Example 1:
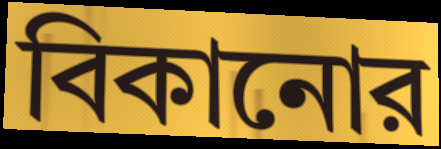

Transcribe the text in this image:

বিকানোর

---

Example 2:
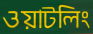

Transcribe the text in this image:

ওয়াটলিং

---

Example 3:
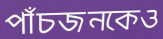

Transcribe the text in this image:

পাঁচজনকেও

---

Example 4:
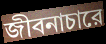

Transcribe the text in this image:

জীবনাচারে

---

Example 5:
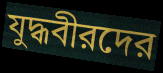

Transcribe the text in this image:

যুদ্ধবীরদের